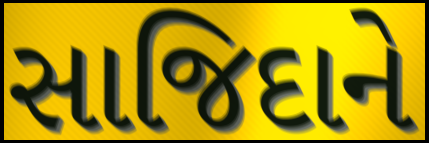
સાજિદાને